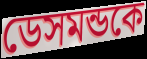
ডেসমন্ডকে